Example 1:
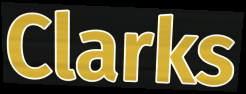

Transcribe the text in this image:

Clarks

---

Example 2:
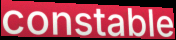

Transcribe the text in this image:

constable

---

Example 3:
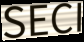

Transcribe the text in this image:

SECI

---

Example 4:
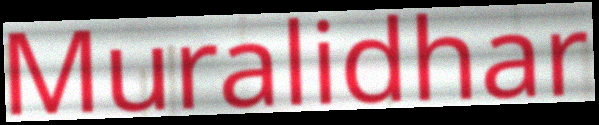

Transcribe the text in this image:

Muralidhar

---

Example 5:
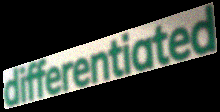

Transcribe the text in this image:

differentiated